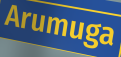
Arumuga